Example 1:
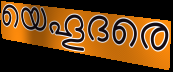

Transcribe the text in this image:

യെഹൂദരെ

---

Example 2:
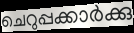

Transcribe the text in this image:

ചെറുപ്പക്കാർക്കു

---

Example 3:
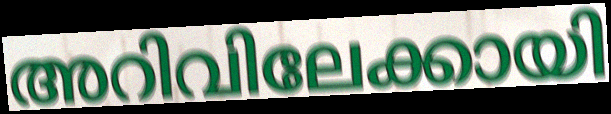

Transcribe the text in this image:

അറിവിലേക്കായി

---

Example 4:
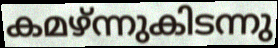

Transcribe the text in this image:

കമഴ്ന്നുകിടന്നു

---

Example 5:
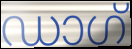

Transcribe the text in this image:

ഡാഗ്